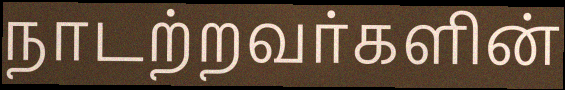
நாடற்றவர்களின்